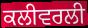
ਕਲੀਵਰਲੀ